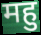
महु